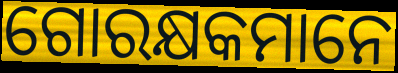
ଗୋରକ୍ଷକମାନେ